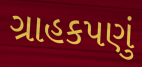
ગ્રાહકપણું